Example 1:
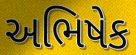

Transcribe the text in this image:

અભિષેક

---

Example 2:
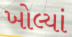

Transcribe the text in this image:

ખોલ્યાં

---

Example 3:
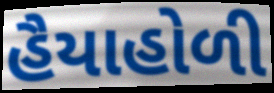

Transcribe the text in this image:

હૈયાહોળી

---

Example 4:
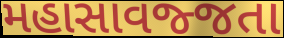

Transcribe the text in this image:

મહાસાવજ્જતા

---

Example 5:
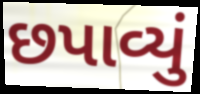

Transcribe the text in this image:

છપાવ્યું